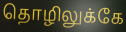
தொழிலுக்கே